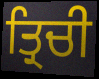
ਤ੍ਰਿਚੀ